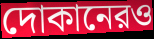
দোকানেরও